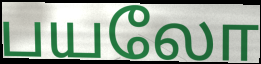
பயலோ